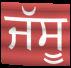
ਜੱਸੂ